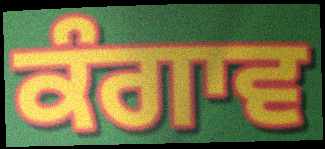
ਕੰਗਾਵ